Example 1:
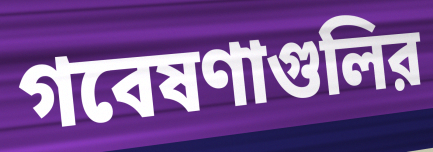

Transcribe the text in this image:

গবেষণাগুলির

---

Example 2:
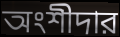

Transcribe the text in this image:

অংশীদার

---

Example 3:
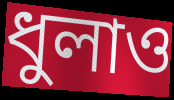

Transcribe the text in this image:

ধুলাও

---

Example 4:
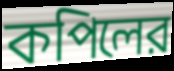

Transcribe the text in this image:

কপিলের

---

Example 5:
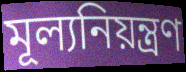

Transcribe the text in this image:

মূল্যনিয়ন্ত্রণ